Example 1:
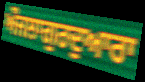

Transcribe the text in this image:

ਔਜਲਾਗੁਰਦੁਆਰਾ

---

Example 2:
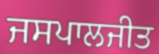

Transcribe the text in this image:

ਜਸਪਾਲਜੀਤ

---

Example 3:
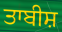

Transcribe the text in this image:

ਤਾਬੀਸ਼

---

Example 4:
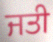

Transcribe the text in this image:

ਜਤੀ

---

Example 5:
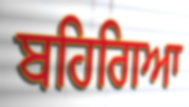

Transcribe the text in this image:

ਬਹਿਗਿਆ